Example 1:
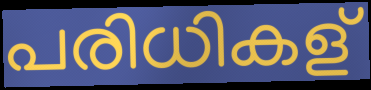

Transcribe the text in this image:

പരിധികള്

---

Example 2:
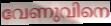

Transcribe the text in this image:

വേണുവിനെ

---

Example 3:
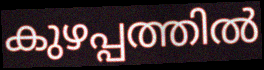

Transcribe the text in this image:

കുഴപ്പത്തിൽ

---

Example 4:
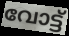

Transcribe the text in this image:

വോട്ട്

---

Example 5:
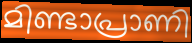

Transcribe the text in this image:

മിണ്ടാപ്രാണി